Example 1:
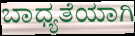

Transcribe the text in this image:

ಬಾಧ್ಯತೆಯಾಗಿ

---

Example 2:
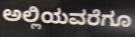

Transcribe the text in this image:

ಅಲ್ಲಿಯವರೆಗೂ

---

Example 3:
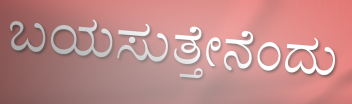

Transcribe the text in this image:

ಬಯಸುತ್ತೇನೆಂದು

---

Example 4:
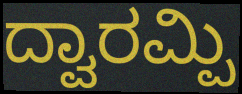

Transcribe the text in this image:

ದ್ವಾರಮ್ಪಿ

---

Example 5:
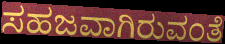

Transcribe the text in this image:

ಸಹಜವಾಗಿರುವಂತೆ